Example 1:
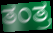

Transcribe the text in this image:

ತಂತ್ರ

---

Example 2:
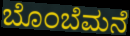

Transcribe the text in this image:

ಬೊಂಬೆಮನೆ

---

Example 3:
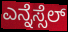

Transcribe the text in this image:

ಎನ್ನೆಸ್ಸೆಲ್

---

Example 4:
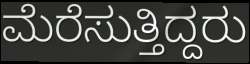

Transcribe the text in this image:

ಮೆರೆಸುತ್ತಿದ್ದರು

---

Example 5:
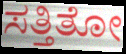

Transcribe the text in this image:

ಸತ್ತಿತೋ